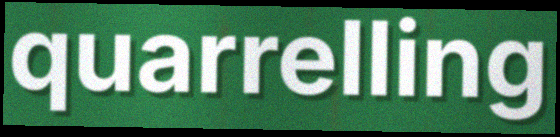
quarrelling